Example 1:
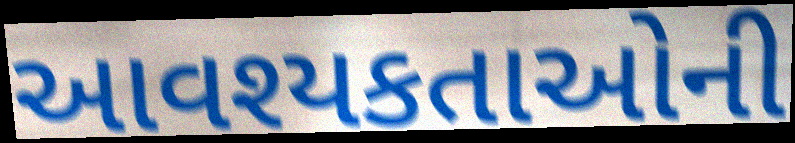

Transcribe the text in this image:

આવશ્યકતાઓની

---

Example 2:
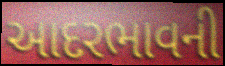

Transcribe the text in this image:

આદરભાવની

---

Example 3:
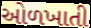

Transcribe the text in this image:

ઓળખાતી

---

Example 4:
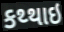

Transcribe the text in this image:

કથ્થાઇ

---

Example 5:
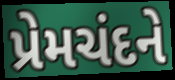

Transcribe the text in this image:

પ્રેમચંદને